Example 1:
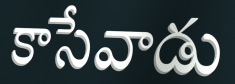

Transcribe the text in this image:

కాసేవాడు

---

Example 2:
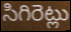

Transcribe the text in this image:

సిగిరెట్లు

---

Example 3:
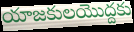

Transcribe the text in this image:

యాజకులయొద్దకు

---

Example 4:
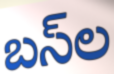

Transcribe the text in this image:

బస్‌ల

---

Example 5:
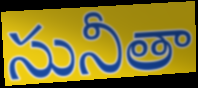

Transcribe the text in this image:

సునీతా